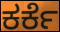
ಕರ್ಕೆ